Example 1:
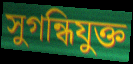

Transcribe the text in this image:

সুগন্ধিযুক্ত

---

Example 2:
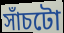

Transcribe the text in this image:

সাঁচটো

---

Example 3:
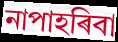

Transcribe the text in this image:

নাপাহৰিবা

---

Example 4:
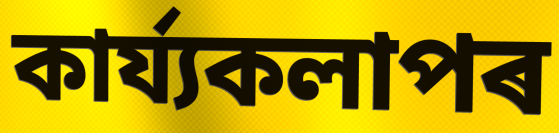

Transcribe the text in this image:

কাৰ্য্যকলাপৰ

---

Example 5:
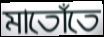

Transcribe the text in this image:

মাতোঁতে